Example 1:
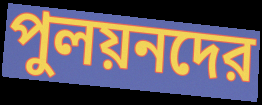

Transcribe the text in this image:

পুলয়নদের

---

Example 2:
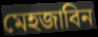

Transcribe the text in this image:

মেহজাবিন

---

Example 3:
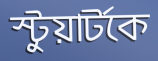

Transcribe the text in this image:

স্টুয়ার্টকে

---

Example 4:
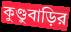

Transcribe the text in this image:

কুণ্ডুবাড়ির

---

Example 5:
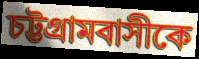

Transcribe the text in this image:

চট্টগ্রামবাসীকে